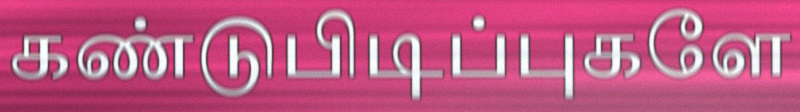
கண்டுபிடிப்புகளே